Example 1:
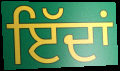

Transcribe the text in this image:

ਇੱਦਾਂ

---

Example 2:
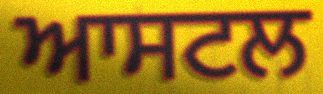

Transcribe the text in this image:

ਆਸਟਲ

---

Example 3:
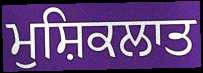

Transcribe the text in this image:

ਮੁਸ਼ਿਕਲਾਤ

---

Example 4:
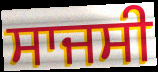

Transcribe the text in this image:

ਸਾਜਸੀ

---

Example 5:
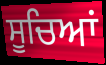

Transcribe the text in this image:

ਸੂਚਿਆਂ